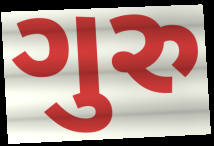
ગુરુ